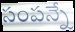
సంపన్నే